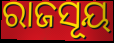
ରାଜସୂୟ